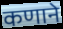
कणाने